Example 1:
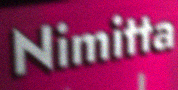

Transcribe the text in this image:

Nimitta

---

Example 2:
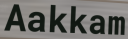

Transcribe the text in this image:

Aakkam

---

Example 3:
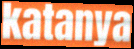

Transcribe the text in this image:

katanya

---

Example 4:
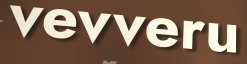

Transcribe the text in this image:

vevveru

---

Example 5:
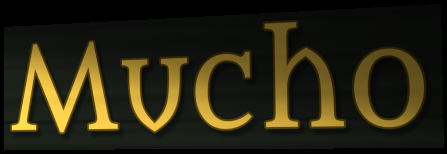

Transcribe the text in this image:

Mucho